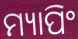
ମ୍ୟାପିଂ